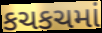
કચકચમાં